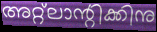
അറ്റ്ലാന്റിക്കിനു